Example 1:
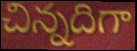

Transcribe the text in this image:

చిన్నదిగా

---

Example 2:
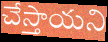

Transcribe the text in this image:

చేస్తాయని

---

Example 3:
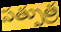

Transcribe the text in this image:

సత్పుత్ర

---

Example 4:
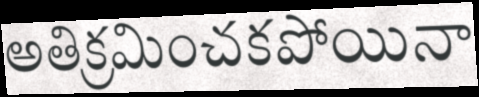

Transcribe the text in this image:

అతిక్రమించకపోయినా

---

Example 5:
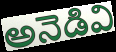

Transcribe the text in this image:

అనెడివి